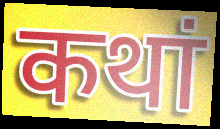
कथां